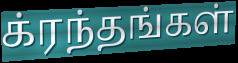
க்ரந்தங்கள்